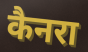
कैनरा